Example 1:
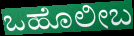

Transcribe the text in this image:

ಒಹೊಲೀಬ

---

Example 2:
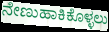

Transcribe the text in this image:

ನೇಣುಹಾಕಿಕೊಳ್ಳಲು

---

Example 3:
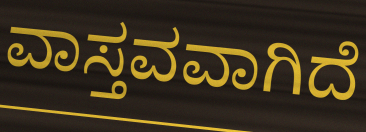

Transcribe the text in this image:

ವಾಸ್ತವವಾಗಿದೆ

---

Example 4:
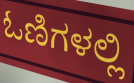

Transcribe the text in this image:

ಓಣಿಗಳಲ್ಲಿ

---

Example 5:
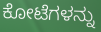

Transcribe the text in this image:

ಕೋಟೆಗಳನ್ನು